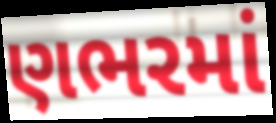
ણભરમાં